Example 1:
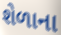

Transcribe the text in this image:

શેળાના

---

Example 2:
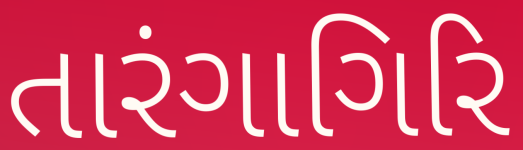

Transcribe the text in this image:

તારંગાગિરિ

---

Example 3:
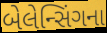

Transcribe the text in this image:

બેલેન્સિંગના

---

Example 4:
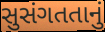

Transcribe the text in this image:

સુસંગતતાનું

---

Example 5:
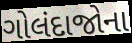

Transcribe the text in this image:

ગોલંદાજોના